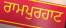
ਰਾਮਪੁਰਹਾਟ